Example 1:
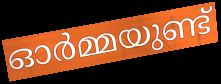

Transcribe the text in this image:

ഓർമ്മയുണ്ട്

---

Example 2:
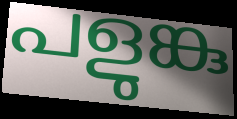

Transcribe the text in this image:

പളുങ്കു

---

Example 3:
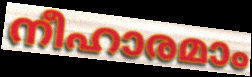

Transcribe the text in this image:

നീഹാരമാം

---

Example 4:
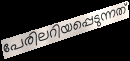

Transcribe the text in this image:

പേരിലറിയപ്പെടുന്നത്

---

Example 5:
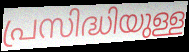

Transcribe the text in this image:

പ്രസിദ്ധിയുള്ള